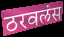
ठरवलंस